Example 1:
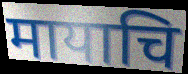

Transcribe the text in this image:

मायाचि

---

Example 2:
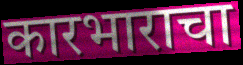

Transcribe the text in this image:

कारभाराचा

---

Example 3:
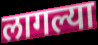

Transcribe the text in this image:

लागल्या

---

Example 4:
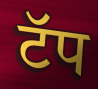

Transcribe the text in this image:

टॅप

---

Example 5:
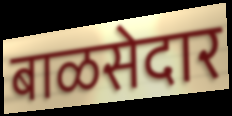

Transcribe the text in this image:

बाळसेदार